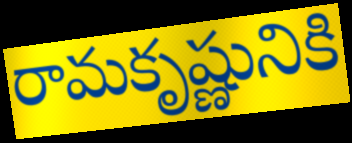
రామకృష్ణునికి